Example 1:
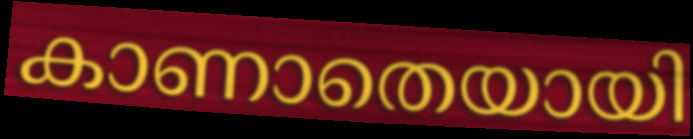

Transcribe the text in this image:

കാണാതെയായി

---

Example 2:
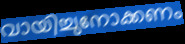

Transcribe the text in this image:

വായിച്ചുനോക്കണം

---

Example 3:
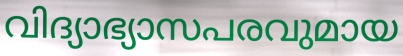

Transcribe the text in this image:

വിദ്യാഭ്യാസപരവുമായ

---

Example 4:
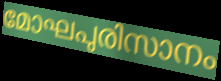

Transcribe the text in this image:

മോഘപുരിസാനം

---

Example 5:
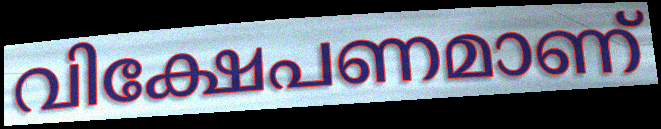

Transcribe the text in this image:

വിക്ഷേപണമാണ്